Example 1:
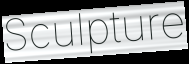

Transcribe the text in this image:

Sculpture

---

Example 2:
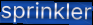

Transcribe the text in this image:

sprinkler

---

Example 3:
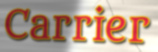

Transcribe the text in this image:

Carrier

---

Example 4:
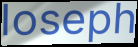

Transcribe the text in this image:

Ioseph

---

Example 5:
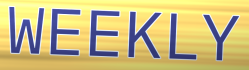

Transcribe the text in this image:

WEEKLY